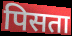
पिसता